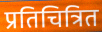
प्रतिचित्रित